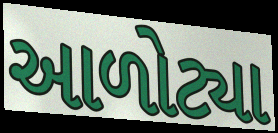
આળોટ્યા